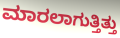
ಮಾರಲಾಗುತ್ತಿತ್ತು